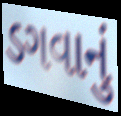
ડગવાનું